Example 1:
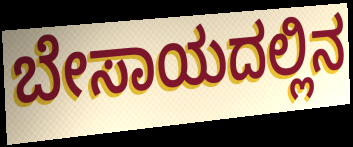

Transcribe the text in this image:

ಬೇಸಾಯದಲ್ಲಿನ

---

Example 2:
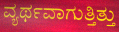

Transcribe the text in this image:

ವ್ಯರ್ಥವಾಗುತ್ತಿತ್ತು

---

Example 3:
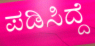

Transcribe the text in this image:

ಪಡಿಸಿದ್ದೆ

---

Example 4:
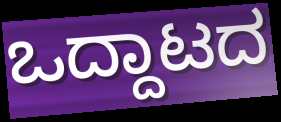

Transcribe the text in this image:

ಒದ್ದಾಟದ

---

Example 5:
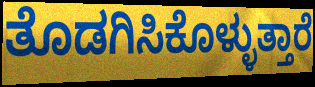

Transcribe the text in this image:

ತೊಡಗಿಸಿಕೊಳ್ಳುತ್ತಾರೆ